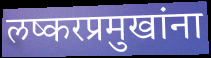
लष्करप्रमुखांना